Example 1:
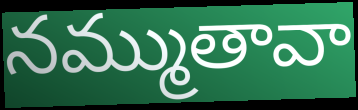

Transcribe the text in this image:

నమ్ముతావా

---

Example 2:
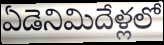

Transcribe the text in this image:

ఏడెనిమిదేళ్లలో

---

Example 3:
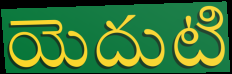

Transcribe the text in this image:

యెదుటి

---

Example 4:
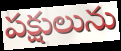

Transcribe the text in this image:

పక్షులును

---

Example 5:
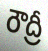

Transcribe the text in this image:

రౌద్రీ